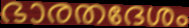
ഭാരതദേശം